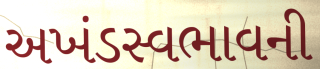
અખંડસ્વભાવની